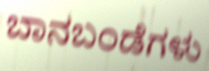
ಬಾನಬಂಡೆಗಳು